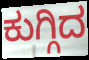
ಕುಗ್ಗಿದ